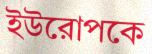
ইউরোপকে